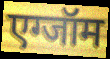
एग्जॉम